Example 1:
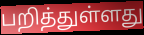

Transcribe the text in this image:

பறித்துள்ளது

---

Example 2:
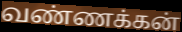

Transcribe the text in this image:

வண்ணக்கன்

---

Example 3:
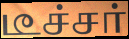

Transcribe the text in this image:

டீச்சர்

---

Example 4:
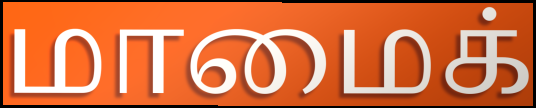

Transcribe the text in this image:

மாமைக்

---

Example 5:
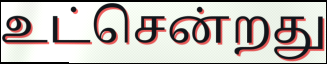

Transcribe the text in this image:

உட்சென்றது